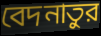
বেদনাতুর